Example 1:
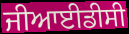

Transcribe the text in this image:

ਜੀਆਈਡੀਸੀ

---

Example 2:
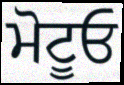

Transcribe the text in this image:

ਮੋਟੂਓ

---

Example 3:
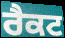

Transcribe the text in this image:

ਰੈਕਟ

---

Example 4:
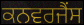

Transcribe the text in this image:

ਕਨਵਰਜੈਂਸ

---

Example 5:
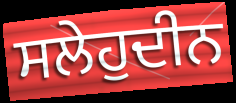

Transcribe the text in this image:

ਸਲੇਹੁਦੀਨ